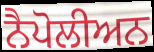
ਨੈਪੋਲੀਅਨ